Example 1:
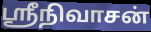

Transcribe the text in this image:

ஸ்ரீநிவாசன்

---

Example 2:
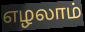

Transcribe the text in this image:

எழலாம்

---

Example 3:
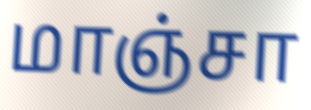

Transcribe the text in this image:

மாஞ்சா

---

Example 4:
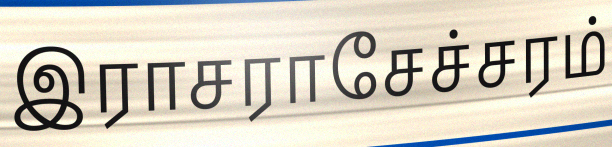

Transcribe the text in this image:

இராசராசேச்சரம்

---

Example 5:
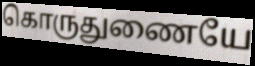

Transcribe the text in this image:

கொருதுணையே